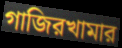
গাজিরখামার